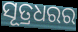
ସୂତ୍ରଧରର